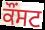
ਕੌਂਸਟ